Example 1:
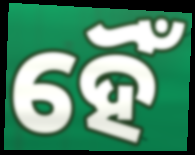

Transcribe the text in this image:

ହୈଁ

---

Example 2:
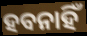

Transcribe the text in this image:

ହବନାହିଁ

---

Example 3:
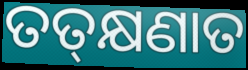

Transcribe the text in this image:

ତତ୍‌କ୍ଷଣାତ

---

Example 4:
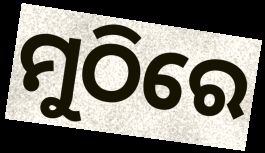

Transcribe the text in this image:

ମୁଠିରେ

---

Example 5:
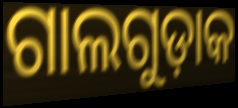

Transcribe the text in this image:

ଗାଲଗୁଡ଼ାକ